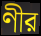
ণীর